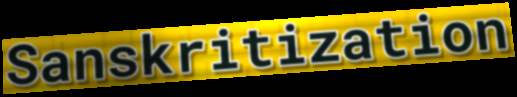
Sanskritization